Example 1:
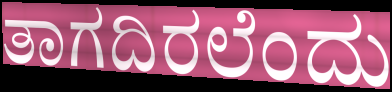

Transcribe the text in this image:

ತಾಗದಿರಲೆಂದು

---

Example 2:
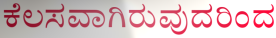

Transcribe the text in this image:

ಕೆಲಸವಾಗಿರುವುದರಿಂದ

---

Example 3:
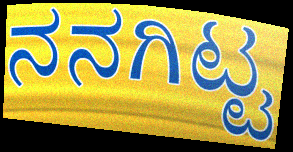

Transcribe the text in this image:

ನನಗಿಟ್ಟ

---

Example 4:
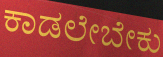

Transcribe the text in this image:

ಕಾಡಲೇಬೇಕು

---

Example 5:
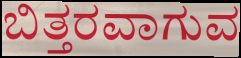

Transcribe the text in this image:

ಬಿತ್ತರವಾಗುವ